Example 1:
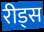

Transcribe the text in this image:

रीड्स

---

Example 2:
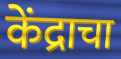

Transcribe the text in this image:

केंद्राचा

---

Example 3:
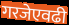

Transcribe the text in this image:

गरजेएवढी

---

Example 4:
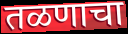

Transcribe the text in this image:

तळणाचा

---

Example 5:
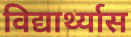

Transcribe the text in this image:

विद्यार्थ्यास